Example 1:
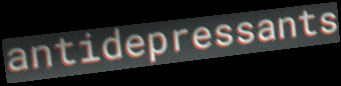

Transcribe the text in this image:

antidepressants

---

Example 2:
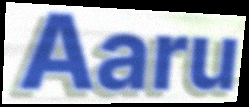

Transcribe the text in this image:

Aaru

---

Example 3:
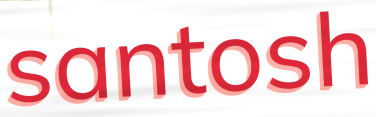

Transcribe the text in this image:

santosh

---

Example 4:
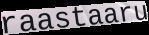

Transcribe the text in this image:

raastaaru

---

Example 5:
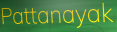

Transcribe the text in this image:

Pattanayak